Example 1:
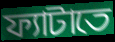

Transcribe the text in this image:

ফ্যাটাতে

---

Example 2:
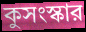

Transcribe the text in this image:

কুসংস্কার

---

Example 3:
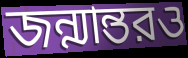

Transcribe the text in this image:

জন্মান্তরও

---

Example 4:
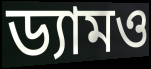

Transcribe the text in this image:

ড্যামও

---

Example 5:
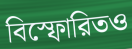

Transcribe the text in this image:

বিস্ফোরিতও